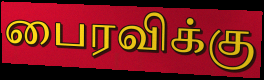
பைரவிக்கு